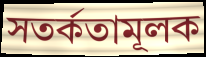
সতর্কতামূলক